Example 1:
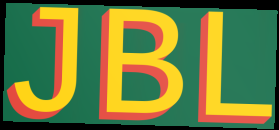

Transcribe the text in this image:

JBL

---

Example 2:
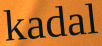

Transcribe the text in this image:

kadal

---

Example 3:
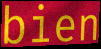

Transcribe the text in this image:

bien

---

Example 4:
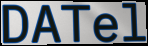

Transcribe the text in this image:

DATel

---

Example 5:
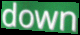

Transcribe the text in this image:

down